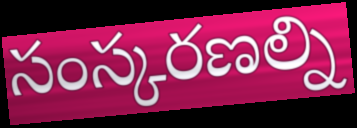
సంస్కరణల్ని